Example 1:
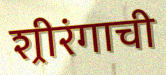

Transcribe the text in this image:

श्रीरंगाची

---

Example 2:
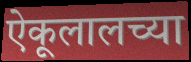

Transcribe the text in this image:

ऐकूलालच्या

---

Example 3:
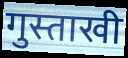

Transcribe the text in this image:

गुस्ताखी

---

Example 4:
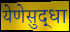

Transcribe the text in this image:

येणेसुद्धा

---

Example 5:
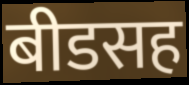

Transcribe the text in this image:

बीडसह